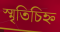
স্মৃতিচিহ্ন